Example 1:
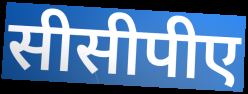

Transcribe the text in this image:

सीसीपीए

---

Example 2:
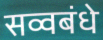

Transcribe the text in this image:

सव्वबंधे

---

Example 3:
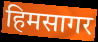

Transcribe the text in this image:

हिमसागर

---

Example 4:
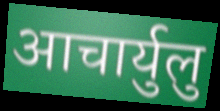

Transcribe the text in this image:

आचार्युलु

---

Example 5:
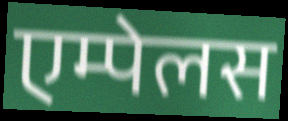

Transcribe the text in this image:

एम्पेलस